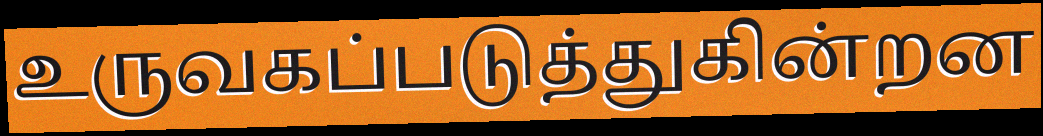
உருவகப்படுத்துகின்றன